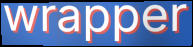
wrapper